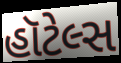
હૉટેલ્સ